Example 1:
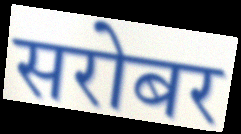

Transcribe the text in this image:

सरोबर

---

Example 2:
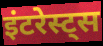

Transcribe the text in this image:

इंटरेस्ट्स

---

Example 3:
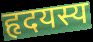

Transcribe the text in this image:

हृदयस्य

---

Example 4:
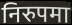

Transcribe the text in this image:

निरुपमा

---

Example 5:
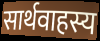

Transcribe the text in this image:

सार्थवाहस्य